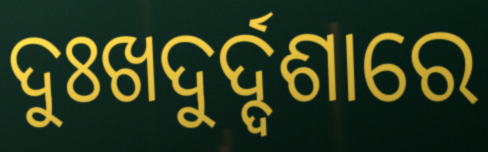
ଦୁଃଖଦୁର୍ଦ୍ଦଶାରେ